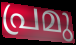
പ്രമു